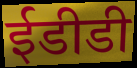
ईडीडी